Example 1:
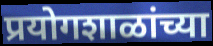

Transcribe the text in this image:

प्रयोगशाळांच्या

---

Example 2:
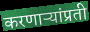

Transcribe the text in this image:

करणाऱ्यांप्रती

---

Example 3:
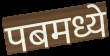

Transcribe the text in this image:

पबमध्ये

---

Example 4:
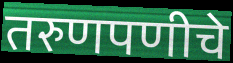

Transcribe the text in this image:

तरुणपणीचे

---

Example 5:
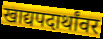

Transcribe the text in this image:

खाद्यपदार्थांवर